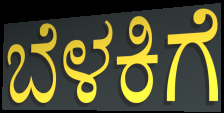
ಬೆಳಕಿಗೆ